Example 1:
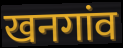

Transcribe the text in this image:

खनगांव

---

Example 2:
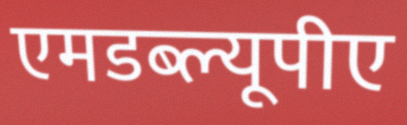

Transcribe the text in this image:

एमडब्ल्यूपीए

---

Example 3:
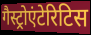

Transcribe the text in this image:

गैस्ट्रोएंटेरिटिस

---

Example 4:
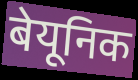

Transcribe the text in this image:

बेयूनिक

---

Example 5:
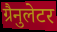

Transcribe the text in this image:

ग्रैनुलेटर